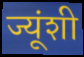
ज्यूंशी